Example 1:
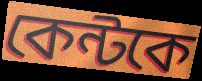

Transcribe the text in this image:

কেন্টকে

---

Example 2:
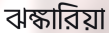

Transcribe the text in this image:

ঝঙ্কারিয়া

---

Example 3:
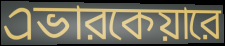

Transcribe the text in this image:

এভারকেয়ারে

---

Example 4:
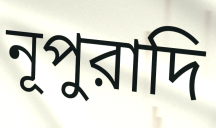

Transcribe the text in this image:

নূপুরাদি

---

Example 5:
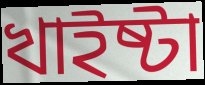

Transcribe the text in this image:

খাইষ্টা